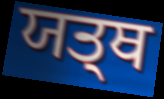
ਯਤ੍ਥ